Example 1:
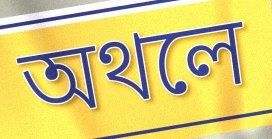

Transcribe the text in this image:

অথলে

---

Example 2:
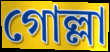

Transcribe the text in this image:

গোল্লা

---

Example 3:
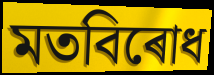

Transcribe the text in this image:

মতবিৰোধ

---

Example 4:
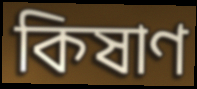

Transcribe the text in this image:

কিষাণ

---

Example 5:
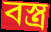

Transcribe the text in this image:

বস্ত্ৰ